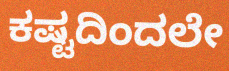
ಕಷ್ಟದಿಂದಲೇ